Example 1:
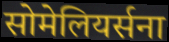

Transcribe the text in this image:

सोमेलियर्सना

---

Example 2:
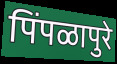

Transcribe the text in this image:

पिंपळापुरे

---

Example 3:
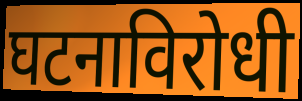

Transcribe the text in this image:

घटनाविरोधी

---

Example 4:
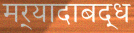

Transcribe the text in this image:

मर्यादाबद्ध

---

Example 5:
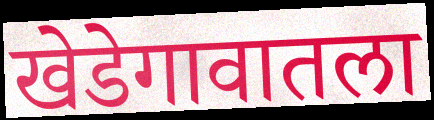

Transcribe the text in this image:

खेडेगावातला